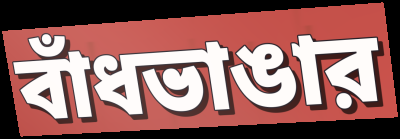
বাঁধভাঙার